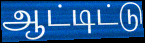
ஆட்டிட்டு